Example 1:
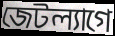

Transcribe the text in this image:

জেটল্যাগে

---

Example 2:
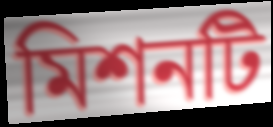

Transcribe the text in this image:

মিশনটি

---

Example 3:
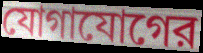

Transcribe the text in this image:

যোগাযোগের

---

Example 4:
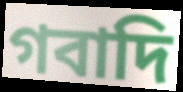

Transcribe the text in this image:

গবাদি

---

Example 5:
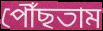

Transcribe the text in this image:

পৌঁছতাম